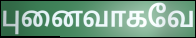
புனைவாகவே